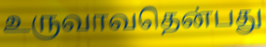
உருவாவதென்பது